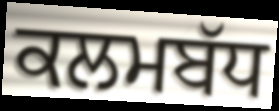
ਕਲਮਬੱਧ